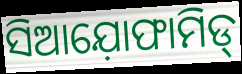
ସିଆଯ଼ୋଫାମିଡ୍